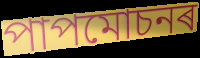
পাপমোচনৰ